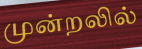
முன்றலில்